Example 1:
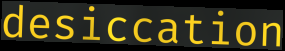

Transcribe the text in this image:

desiccation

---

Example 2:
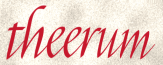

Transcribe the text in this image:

theerum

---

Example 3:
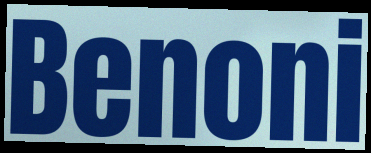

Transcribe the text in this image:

Benoni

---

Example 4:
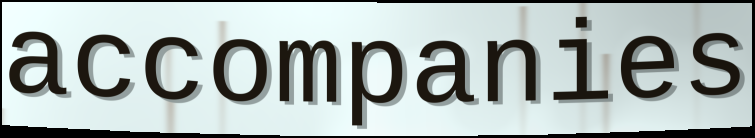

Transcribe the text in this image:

accompanies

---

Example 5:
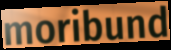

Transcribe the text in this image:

moribund